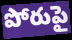
పోరుపై